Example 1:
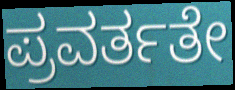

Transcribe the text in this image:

ಪ್ರವರ್ತತೇ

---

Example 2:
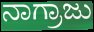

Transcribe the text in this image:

ನಾಗ್ರಾಜು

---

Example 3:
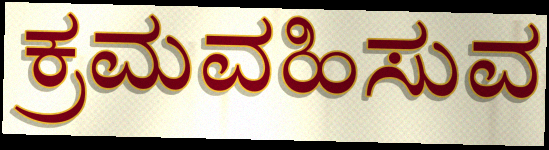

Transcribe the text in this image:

ಕ್ರಮವಹಿಸುವ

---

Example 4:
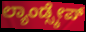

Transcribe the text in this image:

ಲ್ಯಾಂಡ್ಸ್ಕೇಪ್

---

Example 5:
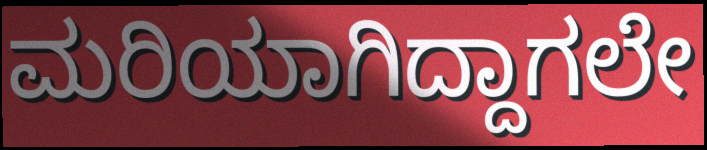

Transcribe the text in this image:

ಮರಿಯಾಗಿದ್ದಾಗಲೇ